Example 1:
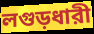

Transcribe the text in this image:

লগুড়ধারী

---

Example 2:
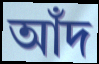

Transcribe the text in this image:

আঁদ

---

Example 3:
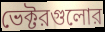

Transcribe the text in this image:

ভেক্টরগুলোর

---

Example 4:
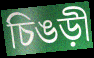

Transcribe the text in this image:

চিঙড়ী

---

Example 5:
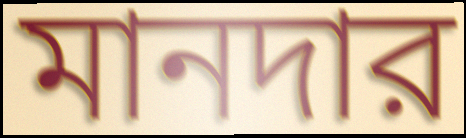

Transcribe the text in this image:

মানদার